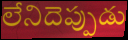
లేనిదెప్పుడు